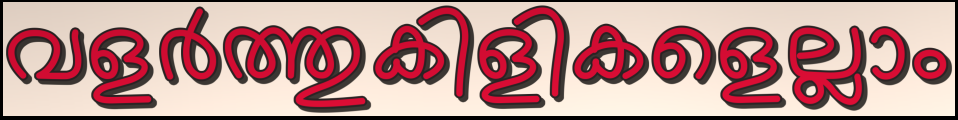
വളർത്തുകിളികളെല്ലാം